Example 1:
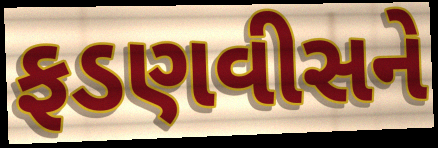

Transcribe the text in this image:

ફડણવીસને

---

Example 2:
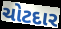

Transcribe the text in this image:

ચોટદાર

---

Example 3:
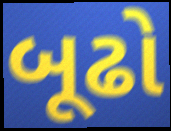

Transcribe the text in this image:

બૂઢો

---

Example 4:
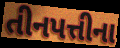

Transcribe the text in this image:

તીનપત્તીના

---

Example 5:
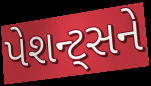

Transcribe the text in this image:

પેશન્ટ્સને